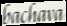
bachava